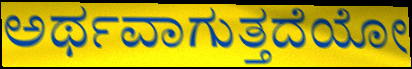
ಅರ್ಥವಾಗುತ್ತದೆಯೋ